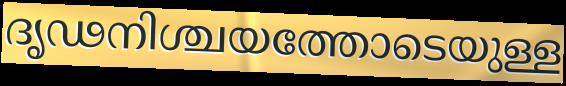
ദൃഢനിശ്ചയത്തോടെയുള്ള